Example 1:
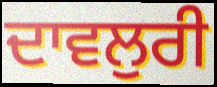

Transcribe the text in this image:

ਦਾਵਲੁਰੀ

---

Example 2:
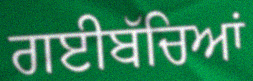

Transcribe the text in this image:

ਗਈਬੱਚਿਆਂ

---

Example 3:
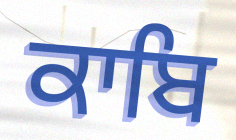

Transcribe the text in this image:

ਕਾਬਿ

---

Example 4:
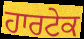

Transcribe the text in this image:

ਹਾਰਟੇਕ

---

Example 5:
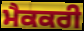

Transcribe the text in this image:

ਮੈਕਕਰੀ